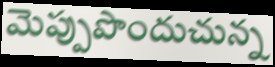
మెప్పుపొందుచున్న